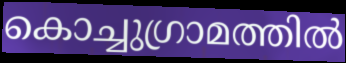
കൊച്ചുഗ്രാമത്തിൽ